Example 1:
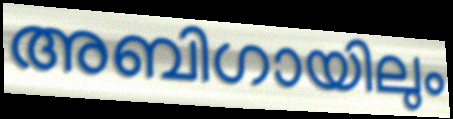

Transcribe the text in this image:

അബിഗായിലും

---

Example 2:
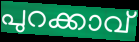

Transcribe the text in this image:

പുറക്കാവ്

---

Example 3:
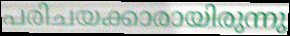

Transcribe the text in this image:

പരിചയക്കാരായിരുന്നു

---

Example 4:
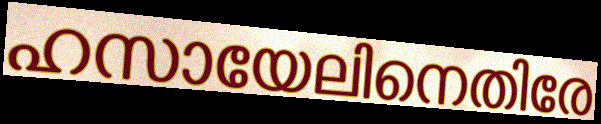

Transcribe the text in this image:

ഹസായേലിനെതിരേ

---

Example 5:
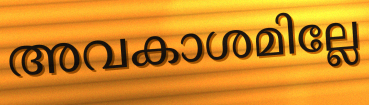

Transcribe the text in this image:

അവകാശമില്ലേ